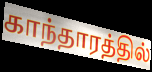
காந்தாரத்தில்